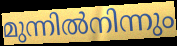
മുന്നിൽനിന്നും